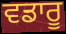
ਵਡਾਰੂ